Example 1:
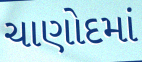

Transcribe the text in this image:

ચાણોદમાં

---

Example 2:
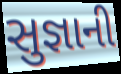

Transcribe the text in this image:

સુજ્ઞાની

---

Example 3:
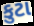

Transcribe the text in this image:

કુટા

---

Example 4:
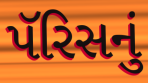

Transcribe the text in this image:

પૅરિસનું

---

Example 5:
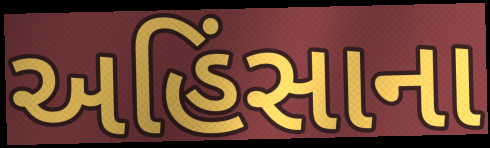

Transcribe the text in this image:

અહિંસાના